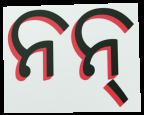
ନନ୍